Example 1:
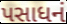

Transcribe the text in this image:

પસાધનં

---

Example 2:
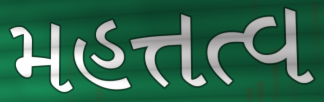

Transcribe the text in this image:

મહત્તત્વ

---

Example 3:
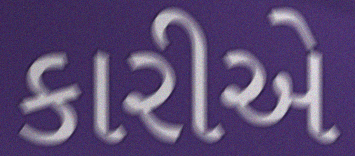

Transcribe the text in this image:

કારીએ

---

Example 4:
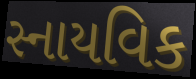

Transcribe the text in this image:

સ્નાયવિક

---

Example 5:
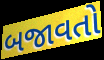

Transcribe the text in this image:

બજાવતો